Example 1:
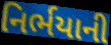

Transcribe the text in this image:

નિર્ભયાની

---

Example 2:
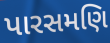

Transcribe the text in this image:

પારસમણિ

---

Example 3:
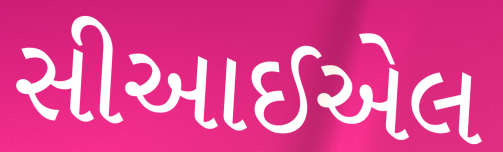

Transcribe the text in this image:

સીઆઈએલ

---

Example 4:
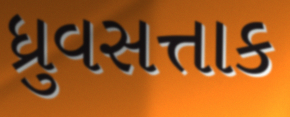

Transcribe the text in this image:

ધ્રુવસત્તાક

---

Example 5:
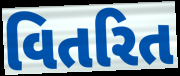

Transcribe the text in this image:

વિતરિત